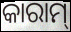
କାରାମ୍